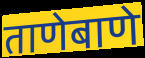
ताणेबाणे